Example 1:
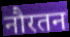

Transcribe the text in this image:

नौरतन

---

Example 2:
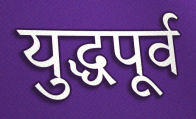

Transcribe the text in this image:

युद्धपूर्व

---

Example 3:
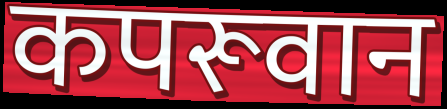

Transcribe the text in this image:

कपरूवान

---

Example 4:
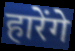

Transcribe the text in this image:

हारेंगे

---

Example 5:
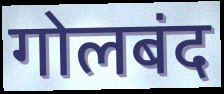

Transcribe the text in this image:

गोलबंद